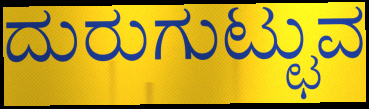
ದುರುಗುಟ್ಟುವ